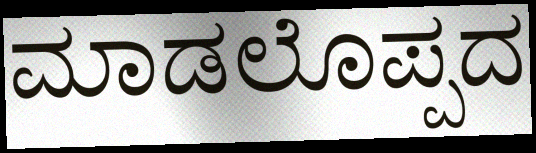
ಮಾಡಲೊಪ್ಪದ